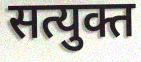
सत्युक्त